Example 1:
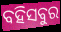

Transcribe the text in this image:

ବହିସବୁର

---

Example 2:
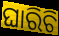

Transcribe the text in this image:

ଘାରିଚି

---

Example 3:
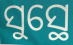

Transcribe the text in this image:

ସୁସ୍ଥେ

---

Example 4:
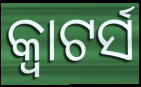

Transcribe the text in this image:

କ୍ଵାଟର୍ସ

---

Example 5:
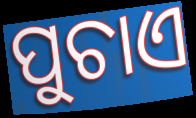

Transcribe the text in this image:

ପୁଚାଏ